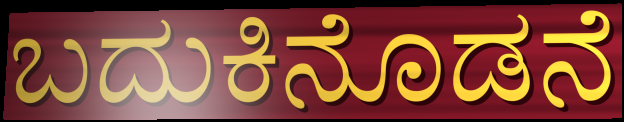
ಬದುಕಿನೊಡನೆ